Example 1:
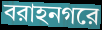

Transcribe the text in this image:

বরাহনগরে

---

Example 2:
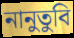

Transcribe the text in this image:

নানুতুবি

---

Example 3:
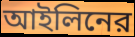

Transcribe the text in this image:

আইলিনের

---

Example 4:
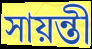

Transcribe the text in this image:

সায়ন্তী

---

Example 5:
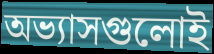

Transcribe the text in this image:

অভ্যাসগুলোই